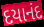
દયાનંદ